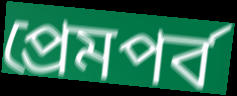
প্রেমপর্ব